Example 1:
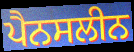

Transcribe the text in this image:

ਪੈਨਸਲੀਨ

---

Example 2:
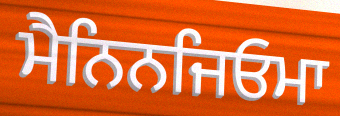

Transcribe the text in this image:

ਮੈਨਿਨਜਿਓਮਾ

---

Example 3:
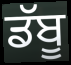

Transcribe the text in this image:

ਡੱਬੂ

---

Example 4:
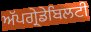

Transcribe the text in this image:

ਅੱਪਗ੍ਰੇਡੇਬਿਲਟੀ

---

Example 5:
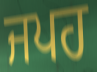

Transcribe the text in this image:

ਜਪਹ